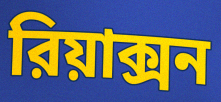
রিয়াক্সন